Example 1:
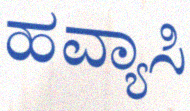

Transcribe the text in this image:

ಹವ್ಯಾಸಿ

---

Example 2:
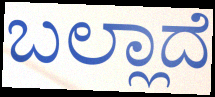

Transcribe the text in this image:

ಬಲ್ಲಾದೆ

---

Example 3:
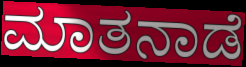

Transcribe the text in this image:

ಮಾತನಾಡೆ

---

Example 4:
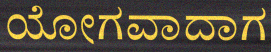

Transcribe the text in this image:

ಯೋಗವಾದಾಗ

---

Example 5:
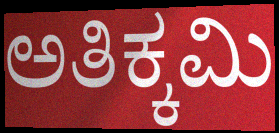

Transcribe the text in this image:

ಅತಿಕ್ಕಮಿ